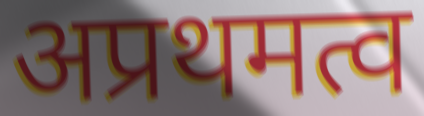
अप्रथमत्व